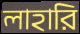
লাহারি